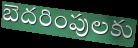
బెదరింపులకు